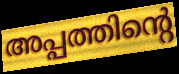
അപ്പത്തിന്റെ